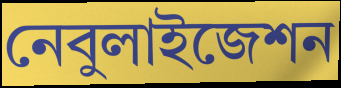
নেবুলাইজেশন